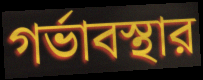
গর্ভাবস্থার